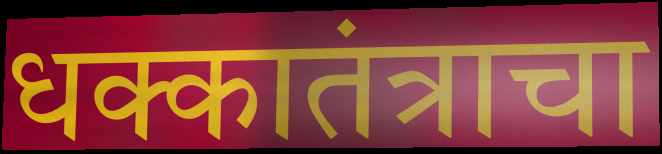
धक्कातंत्राचा